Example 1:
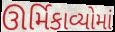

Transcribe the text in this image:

ઊર્મિકાવ્યોમાં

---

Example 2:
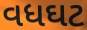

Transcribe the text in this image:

વધઘટ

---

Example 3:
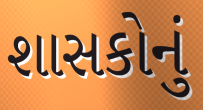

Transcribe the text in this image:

શાસકોનું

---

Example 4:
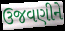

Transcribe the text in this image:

ઉજવણીને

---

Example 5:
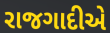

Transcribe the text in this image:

રાજગાદીએ